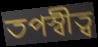
তপস্বীত্ব